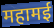
महामई